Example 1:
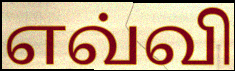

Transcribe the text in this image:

எவ்வி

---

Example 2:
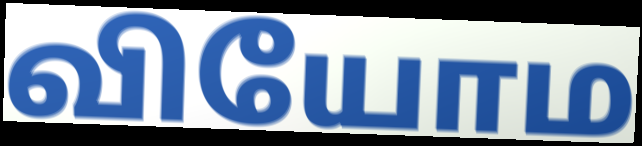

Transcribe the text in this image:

வியோம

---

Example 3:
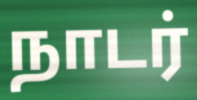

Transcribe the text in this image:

நாடர்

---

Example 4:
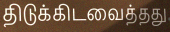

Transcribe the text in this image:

திடுக்கிடவைத்தது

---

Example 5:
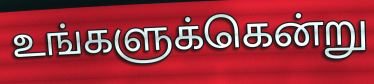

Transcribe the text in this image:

உங்களுக்கென்று